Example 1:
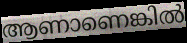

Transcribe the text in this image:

ആണാണെങ്കിൽ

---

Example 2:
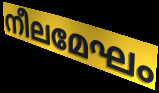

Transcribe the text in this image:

നീലമേഘം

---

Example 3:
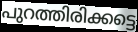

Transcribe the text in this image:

പുറത്തിരിക്കട്ടെ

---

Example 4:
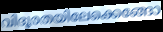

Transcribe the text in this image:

വിദൂരതയിലേക്കെങ്ങോ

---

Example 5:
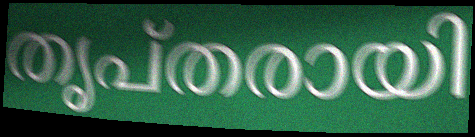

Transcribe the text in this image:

തൃപ്തരായി